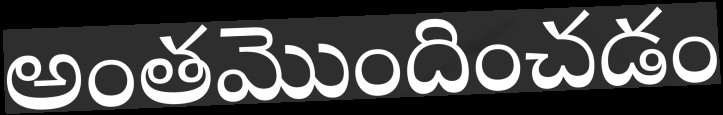
అంతమొందించడం